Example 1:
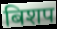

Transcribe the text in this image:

बिशप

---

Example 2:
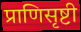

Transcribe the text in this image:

प्राणिसृष्टी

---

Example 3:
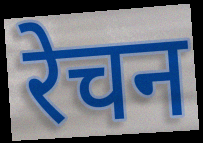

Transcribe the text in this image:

रेचन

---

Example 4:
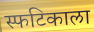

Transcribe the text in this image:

स्फटिकाला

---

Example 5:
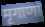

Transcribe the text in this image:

मृगाणां